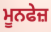
ਮੂਨਫੇਜ਼